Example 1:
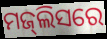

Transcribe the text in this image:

ମଜ୍‍ଲିସରେ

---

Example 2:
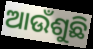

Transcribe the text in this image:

ଆଉଁଶୁଛି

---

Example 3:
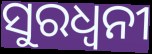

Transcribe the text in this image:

ସୁରଧ୍ୱନୀ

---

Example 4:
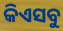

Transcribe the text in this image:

କିଏସବୁ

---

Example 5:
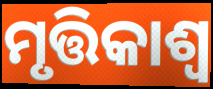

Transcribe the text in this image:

ମୃତ୍ତିକାଶ୍ୱ